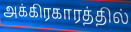
அக்கிரகாரத்தில்